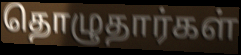
தொழுதார்கள்